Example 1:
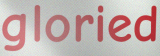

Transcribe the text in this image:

gloried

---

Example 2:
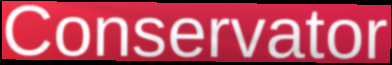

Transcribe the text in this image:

Conservator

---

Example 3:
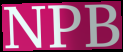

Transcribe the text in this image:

NPB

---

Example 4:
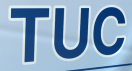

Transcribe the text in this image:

TUC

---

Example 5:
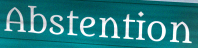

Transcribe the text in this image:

Abstention